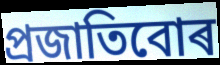
প্ৰজাতিবোৰ